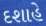
દશાહે